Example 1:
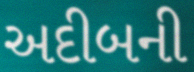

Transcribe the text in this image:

અદીબની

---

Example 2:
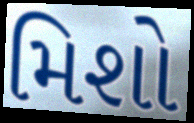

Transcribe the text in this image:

મિશો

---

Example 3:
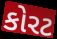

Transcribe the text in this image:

કોરટ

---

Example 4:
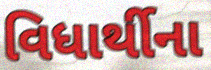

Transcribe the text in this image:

વિધાર્થીના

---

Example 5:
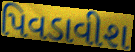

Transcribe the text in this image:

પિવડાવીશ